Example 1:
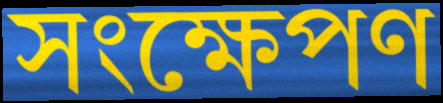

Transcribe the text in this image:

সংক্ষেপণ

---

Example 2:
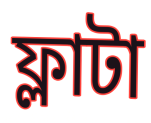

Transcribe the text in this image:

ফ্লাটা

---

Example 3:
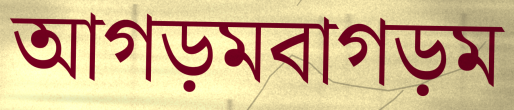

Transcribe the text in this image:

আগড়মবাগড়ম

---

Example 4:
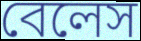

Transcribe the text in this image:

বেলেস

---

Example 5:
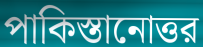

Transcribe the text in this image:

পাকিস্তানোত্তর